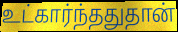
உட்கார்ந்ததுதான்